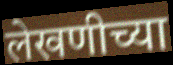
लेखणीच्या